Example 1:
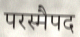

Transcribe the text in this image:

परस्मैपद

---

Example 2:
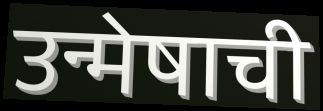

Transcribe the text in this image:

उन्मेषाची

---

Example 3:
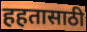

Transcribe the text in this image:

हहतासाठी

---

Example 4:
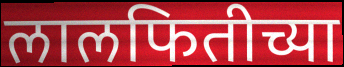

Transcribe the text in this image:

लालफितीच्या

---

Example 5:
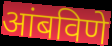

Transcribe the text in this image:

आंबविणे